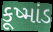
કૂષ્માંડ